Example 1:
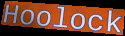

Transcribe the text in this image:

Hoolock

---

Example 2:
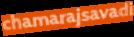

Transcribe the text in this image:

chamarajsavadi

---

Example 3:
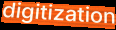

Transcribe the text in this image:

digitization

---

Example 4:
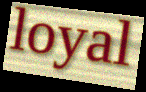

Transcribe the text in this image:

loyal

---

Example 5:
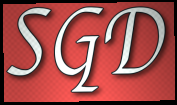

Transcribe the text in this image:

SGD